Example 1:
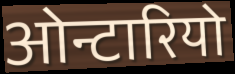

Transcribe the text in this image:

ओन्टारियो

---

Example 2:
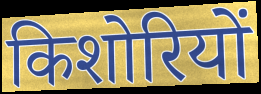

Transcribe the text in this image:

किशोरियों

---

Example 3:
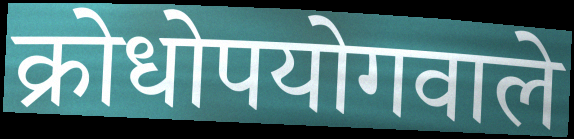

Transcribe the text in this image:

क्रोधोपयोगवाले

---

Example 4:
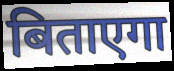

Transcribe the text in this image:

बिताएगा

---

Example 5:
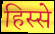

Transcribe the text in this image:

हिस्से